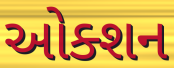
ઓક્શન